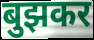
बुझकर